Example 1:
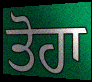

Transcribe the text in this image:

ਤੋਹਾ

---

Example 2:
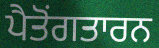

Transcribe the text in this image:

ਪੈਤੋਂਗਤਾਰਨ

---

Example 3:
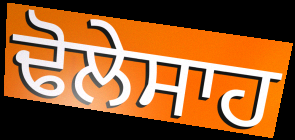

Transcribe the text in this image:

ਢੋਲੇਸਾਹ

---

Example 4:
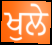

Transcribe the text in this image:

ਖੁਲੇ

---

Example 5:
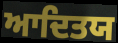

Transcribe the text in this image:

ਆਦਿਤਯ